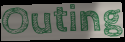
Outing